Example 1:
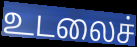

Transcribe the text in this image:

உடலைச்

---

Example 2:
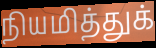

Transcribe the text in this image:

நியமித்துக்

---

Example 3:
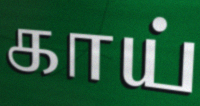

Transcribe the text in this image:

காய்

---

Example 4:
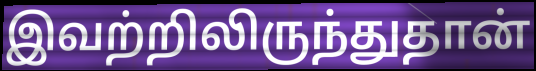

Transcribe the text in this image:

இவற்றிலிருந்துதான்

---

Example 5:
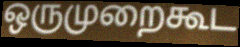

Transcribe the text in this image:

ஒருமுறைகூட